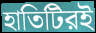
হাতিটিরই